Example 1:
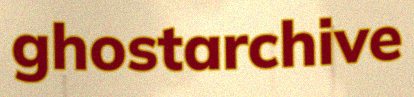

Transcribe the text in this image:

ghostarchive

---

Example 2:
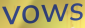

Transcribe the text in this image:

vows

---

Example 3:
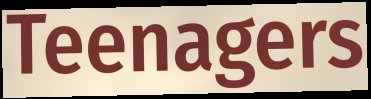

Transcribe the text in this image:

Teenagers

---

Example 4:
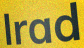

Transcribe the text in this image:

Irad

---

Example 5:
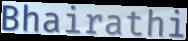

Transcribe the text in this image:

Bhairathi